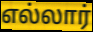
எல்லார்